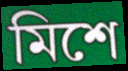
মিশে